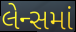
લેન્સમાં